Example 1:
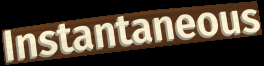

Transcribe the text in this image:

Instantaneous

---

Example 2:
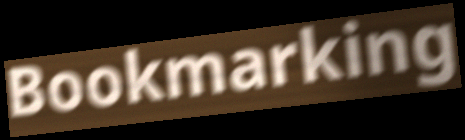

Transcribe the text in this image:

Bookmarking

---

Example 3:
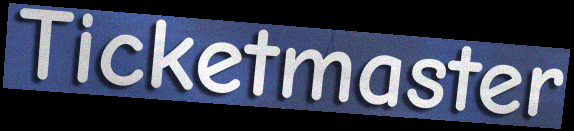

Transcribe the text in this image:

Ticketmaster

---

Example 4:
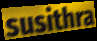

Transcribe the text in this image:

susithra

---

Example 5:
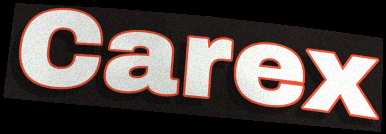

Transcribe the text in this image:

Carex